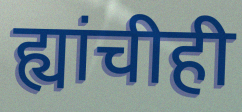
ह्यांचीही